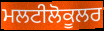
ਮਲਟੀਲੋਕੂਲਰ